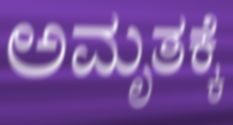
ಅಮೃತಕ್ಕೆ